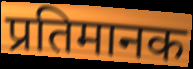
प्रतिमानक